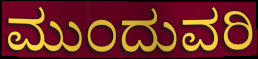
ಮುಂದುವರಿ